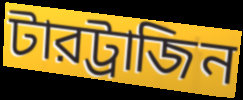
টারট্রাজিন